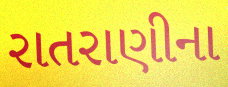
રાતરાણીના